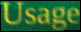
Usage